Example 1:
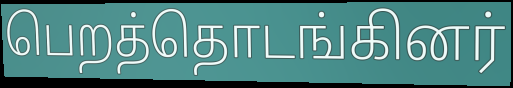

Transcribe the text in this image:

பெறத்தொடங்கினர்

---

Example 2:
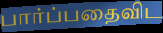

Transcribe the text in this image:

பார்ப்பதைவிட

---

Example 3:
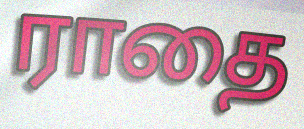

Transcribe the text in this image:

ராதை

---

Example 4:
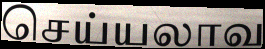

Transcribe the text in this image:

செய்யலாவ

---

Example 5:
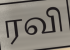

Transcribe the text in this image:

ரவி